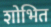
शोभित